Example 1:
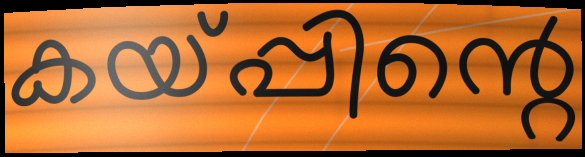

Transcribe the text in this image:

കയ്പ്പിന്റെ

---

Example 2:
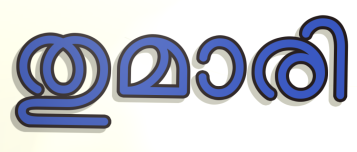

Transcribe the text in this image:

തുമാരി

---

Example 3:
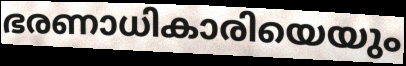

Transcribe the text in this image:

ഭരണാധികാരിയെയും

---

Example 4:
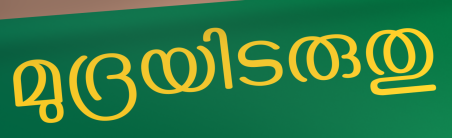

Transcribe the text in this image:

മുദ്രയിടരുതു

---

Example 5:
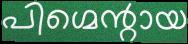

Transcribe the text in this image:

പിഗ്മെന്റായ